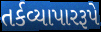
તર્કવ્યાપારરૂપે